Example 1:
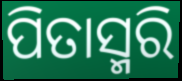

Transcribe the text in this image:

ପିତାସ୍ମରି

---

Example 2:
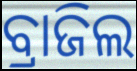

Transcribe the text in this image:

ବ୍ରାଜିଲ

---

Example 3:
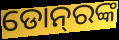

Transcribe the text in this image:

ଡୋନ୍‌ରଙ୍କ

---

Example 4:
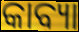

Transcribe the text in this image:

କାବ୍ୟା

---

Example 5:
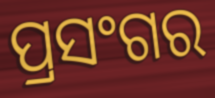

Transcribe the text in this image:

ପ୍ରସଂଗର